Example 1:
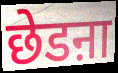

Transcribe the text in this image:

छेडऩा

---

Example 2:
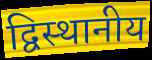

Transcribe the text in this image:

द्विस्थानीय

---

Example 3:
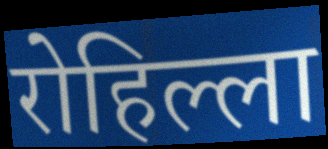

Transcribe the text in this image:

रोहिल्ला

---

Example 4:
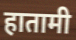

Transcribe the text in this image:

हातामी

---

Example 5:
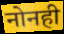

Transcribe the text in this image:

नोनही